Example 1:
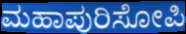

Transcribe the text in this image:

ಮಹಾಪುರಿಸೋಪಿ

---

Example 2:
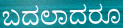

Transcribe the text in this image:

ಬದಲಾದರೂ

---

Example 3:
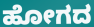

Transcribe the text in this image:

ಹೋಗದ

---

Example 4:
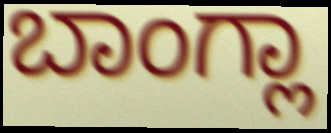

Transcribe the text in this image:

ಬಾಂಗ್ಲಾ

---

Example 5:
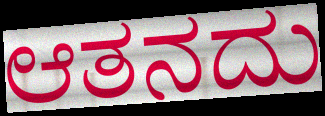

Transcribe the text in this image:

ಆತನದು